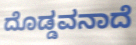
ದೊಡ್ಡವನಾದೆ